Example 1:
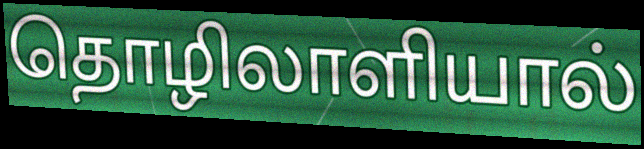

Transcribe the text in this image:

தொழிலாளியால்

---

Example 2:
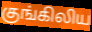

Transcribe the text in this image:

குங்கிலிய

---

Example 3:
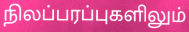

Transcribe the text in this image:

நிலப்பரப்புகளிலும்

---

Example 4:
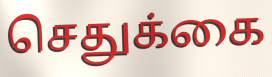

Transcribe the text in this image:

செதுக்கை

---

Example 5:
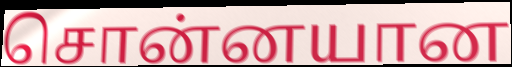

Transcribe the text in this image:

சொன்னயான